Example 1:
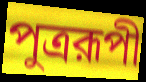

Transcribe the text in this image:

পুত্ররূপী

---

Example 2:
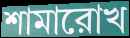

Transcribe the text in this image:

শামারোখ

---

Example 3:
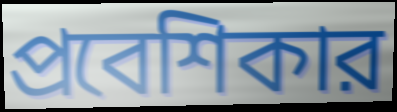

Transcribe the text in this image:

প্রবেশিকার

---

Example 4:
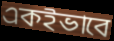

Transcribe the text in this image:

একইভাবে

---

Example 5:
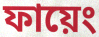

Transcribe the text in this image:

ফায়েং